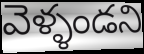
వెళ్ళండని